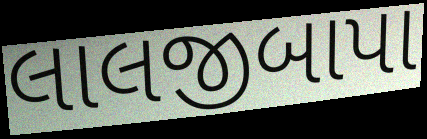
લાલજીબાપા